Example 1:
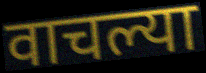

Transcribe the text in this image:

वाचल्या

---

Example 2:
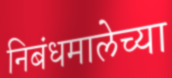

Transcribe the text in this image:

निबंधमालेच्या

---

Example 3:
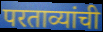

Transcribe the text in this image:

परताव्यांची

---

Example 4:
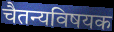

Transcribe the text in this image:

चैतन्यविषयक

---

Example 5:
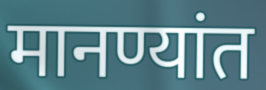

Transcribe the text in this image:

मानण्यांत